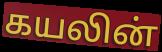
கயலின்